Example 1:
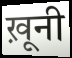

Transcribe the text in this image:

ख़ूनी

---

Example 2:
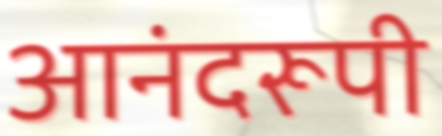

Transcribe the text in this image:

आनंदरूपी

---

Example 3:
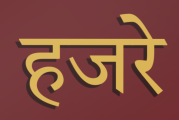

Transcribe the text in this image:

हजरे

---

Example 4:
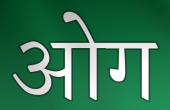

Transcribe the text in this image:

ओग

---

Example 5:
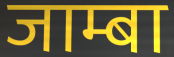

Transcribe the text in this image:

जाम्बा